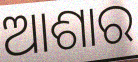
ଆଶାର